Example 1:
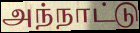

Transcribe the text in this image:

அந்நாட்டு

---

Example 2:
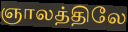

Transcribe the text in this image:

ஞாலத்திலே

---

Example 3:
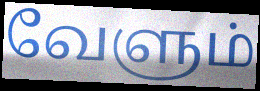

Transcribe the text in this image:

வேளும்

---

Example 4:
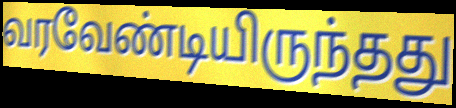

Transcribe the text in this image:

வரவேண்டியிருந்தது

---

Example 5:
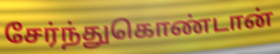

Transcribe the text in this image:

சேர்ந்துகொண்டான்